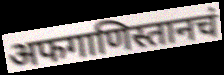
अफगाणिस्तानचं